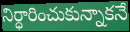
నిర్ధారించుకున్నాకనే